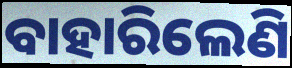
ବାହାରିଲେଣି